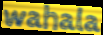
wahala